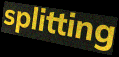
splitting